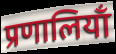
प्रणालियाँ